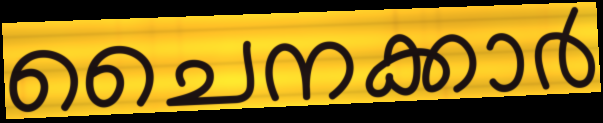
ചൈനക്കാർ